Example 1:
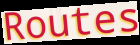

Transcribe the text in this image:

Routes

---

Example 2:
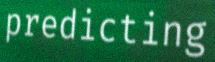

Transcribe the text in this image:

predicting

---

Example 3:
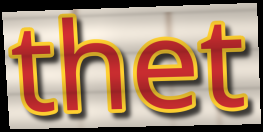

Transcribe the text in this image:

thet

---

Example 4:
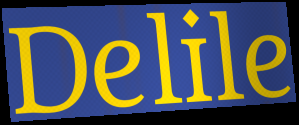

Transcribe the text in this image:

Delile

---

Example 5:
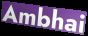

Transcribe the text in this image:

Ambhai